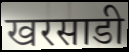
खरसाडी